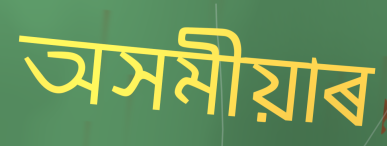
অসমীয়াৰ